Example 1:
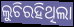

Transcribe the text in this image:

ଲୁଚିରହିଥିଲା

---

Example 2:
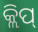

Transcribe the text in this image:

କ୍ଲିପ୍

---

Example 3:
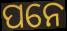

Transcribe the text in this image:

ପନେ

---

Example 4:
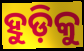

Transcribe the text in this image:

ହୁଡ଼ିକୁ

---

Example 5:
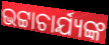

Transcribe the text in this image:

ଭଟ୍ଟାଚାର୍ଯ୍ୟଙ୍କ